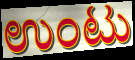
ಉಂಟು